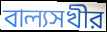
বাল্যসখীর